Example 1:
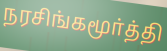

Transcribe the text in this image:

நரசிங்கமூர்த்தி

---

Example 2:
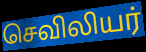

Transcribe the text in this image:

செவிலியர்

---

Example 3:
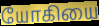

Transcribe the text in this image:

யோகியை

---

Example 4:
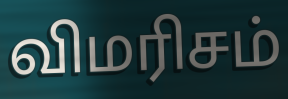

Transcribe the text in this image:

விமரிசம்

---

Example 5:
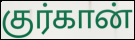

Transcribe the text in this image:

குர்கான்